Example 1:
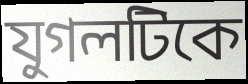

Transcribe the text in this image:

যুগলটিকে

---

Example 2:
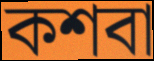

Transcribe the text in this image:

কশবা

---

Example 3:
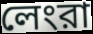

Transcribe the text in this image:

লেংরা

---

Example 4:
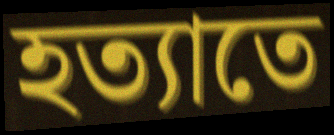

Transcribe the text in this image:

হত্যাতে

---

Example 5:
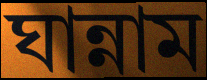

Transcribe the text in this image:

ঘান্নাম